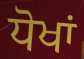
ਧੋਖਾਂ